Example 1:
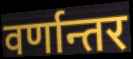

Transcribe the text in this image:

वर्णान्तर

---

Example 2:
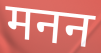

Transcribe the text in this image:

मनन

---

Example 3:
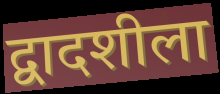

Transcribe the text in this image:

द्वादशीला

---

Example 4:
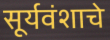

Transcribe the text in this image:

सूर्यवंशाचे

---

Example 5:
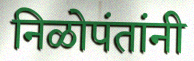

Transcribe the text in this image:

निळोपंतांनी